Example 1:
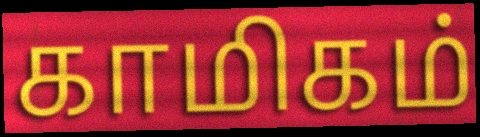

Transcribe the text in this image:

காமிகம்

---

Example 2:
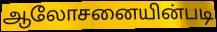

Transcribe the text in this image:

ஆலோசனையின்படி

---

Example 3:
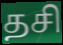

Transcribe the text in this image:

தசி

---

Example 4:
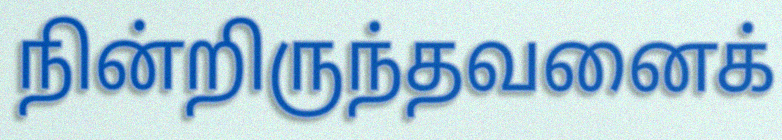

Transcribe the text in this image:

நின்றிருந்தவனைக்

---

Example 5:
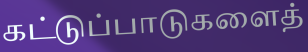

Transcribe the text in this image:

கட்டுப்பாடுகளைத்